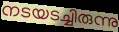
നടയടച്ചിരുന്നു